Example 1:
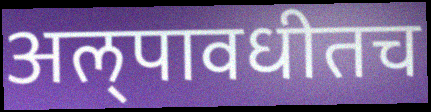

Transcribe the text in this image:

अल्पावधीतच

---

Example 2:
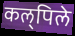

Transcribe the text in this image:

कल्पिले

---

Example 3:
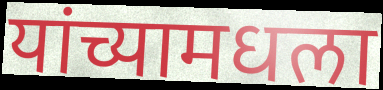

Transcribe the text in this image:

यांच्यामधला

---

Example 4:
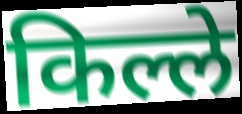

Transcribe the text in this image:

किल्ले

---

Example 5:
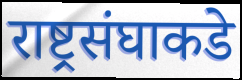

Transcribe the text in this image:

राष्ट्रसंघाकडे